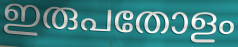
ഇരുപതോളം